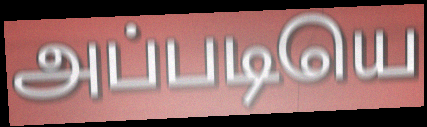
அப்படியெ